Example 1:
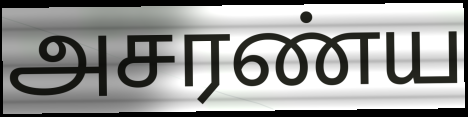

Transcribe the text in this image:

அசரண்ய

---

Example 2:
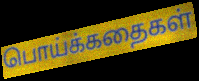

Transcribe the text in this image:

பொய்க்கதைகள்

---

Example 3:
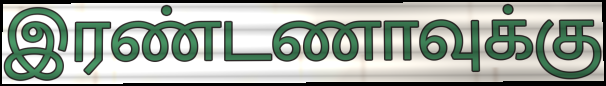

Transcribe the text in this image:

இரண்டணாவுக்கு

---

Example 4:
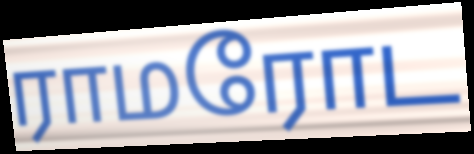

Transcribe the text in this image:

ராமரோட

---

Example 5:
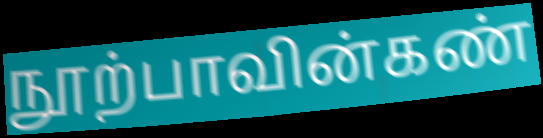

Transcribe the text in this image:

நூற்பாவின்கண்